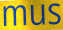
mus